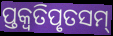
ପ୍ତକ୍ଵତିପୃତସମ୍